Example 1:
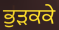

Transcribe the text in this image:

ਭੁੜਕਕੇ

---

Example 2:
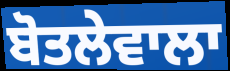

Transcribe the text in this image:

ਬੋਤਲੇਵਾਲਾ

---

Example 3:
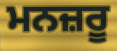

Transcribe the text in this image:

ਮਨਜ਼ਰੂ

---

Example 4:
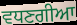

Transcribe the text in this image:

ਵਧਣਗੀਆ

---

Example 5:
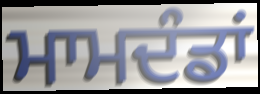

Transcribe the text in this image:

ਮਾਮਦੰਡਾਂ